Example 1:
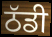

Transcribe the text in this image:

ਠੱਡੀ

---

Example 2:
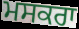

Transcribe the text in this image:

ਮਸਕਰਾ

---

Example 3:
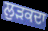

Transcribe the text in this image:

ਲੁੜਕਦਾ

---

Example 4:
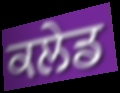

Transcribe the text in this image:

ਕਲੇਡ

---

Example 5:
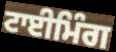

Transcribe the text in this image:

ਟਾਈਮਿੰਗ